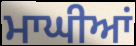
ਮਾਘੀਆਂ